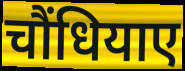
चौंधियाए